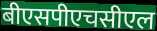
बीएसपीएचसीएल